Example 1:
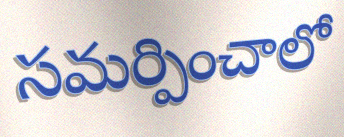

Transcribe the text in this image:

సమర్పించాలో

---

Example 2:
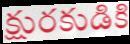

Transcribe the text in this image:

క్షురకుడికి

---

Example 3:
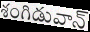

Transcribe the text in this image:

శంగిడువాన్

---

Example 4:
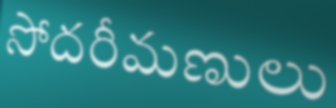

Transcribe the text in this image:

సోదరీమణులు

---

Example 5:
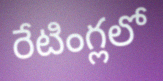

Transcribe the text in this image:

రేటింగ్లలో